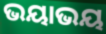
ଭୟାଭୟ